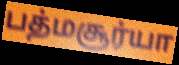
பத்மசூர்யா